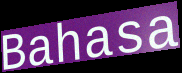
Bahasa